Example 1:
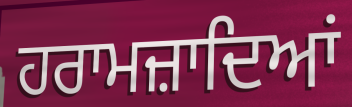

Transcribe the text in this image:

ਹਰਾਮਜ਼ਾਦਿਆਂ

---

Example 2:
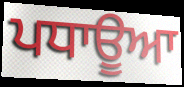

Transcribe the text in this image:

ਪਧਾਊਆ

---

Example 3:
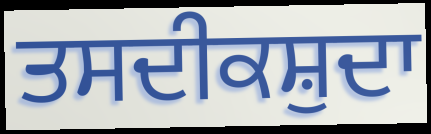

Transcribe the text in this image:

ਤਸਦੀਕਸ਼ੁਦਾ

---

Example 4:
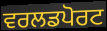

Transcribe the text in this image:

ਵਰਲਡਪੋਰਟ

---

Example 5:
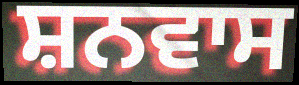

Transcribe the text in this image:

ਸ਼ਨਵਾਸ